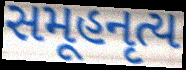
સમૂહનૃત્ય